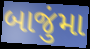
બાજુંમા